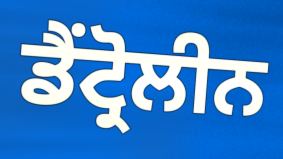
ਡੈਂਟ੍ਰੋਲੀਨ